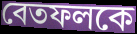
বেতফলকে